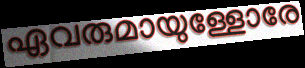
ഏവരുമായുള്ളോരേ